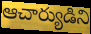
ఆచార్యుడిని